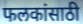
फलकांसाठी